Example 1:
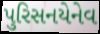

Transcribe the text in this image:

પુરિસનયેનેવ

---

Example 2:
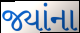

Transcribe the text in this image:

જ્યાંના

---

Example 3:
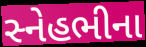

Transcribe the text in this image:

સ્નેહભીના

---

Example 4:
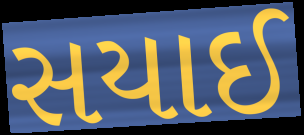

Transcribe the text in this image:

સયાઈ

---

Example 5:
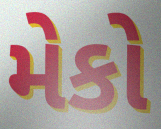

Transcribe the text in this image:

મેકો